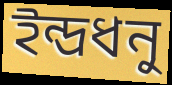
ইন্দ্রধনু